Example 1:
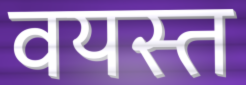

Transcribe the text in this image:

वयस्त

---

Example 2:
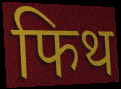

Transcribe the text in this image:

फिथ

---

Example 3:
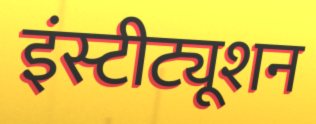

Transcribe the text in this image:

इंस्‍टीट्यूशन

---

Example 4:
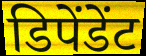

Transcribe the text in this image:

डिपेंडेंट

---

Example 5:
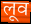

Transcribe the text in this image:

लूव